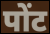
पोंट